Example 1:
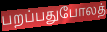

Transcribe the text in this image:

பறப்பதுபோலத்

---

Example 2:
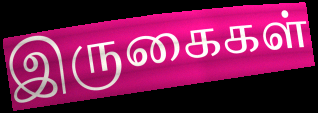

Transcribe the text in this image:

இருகைகள்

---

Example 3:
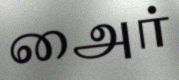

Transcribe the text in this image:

அைர்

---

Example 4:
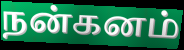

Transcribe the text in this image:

நன்கனம்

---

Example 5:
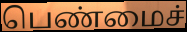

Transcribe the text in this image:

பெண்மைச்